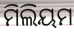
ମିଲିୟମ